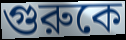
গুরুকে